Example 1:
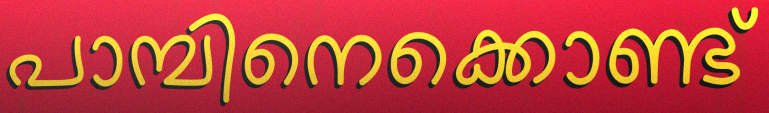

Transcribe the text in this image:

പാമ്പിനെക്കൊണ്ട്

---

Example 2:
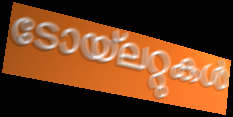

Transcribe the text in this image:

ടോയ്‌ലറ്റുകൾ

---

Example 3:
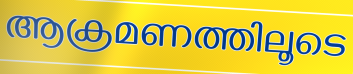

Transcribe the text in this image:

ആക്രമണത്തിലൂടെ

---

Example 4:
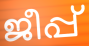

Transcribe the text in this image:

ജീപ്പ്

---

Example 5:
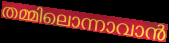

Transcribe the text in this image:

തമ്മിലൊന്നാവാൻ